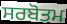
ਸਰਬੋਤਮ